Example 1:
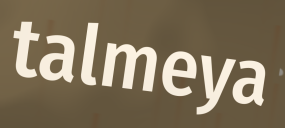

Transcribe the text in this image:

talmeya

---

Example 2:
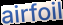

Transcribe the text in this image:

airfoil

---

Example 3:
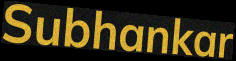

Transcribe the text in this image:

Subhankar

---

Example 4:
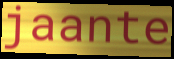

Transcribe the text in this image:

jaante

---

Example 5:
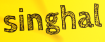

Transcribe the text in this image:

singhal